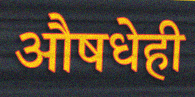
औषधेही